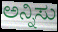
ಅನ್ನಿಸು